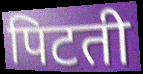
पिटती